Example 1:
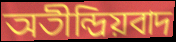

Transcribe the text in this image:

অতীন্দ্রিয়বাদ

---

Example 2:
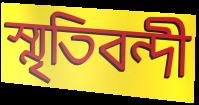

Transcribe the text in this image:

স্মৃতিবন্দী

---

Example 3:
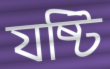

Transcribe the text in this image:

যষ্টি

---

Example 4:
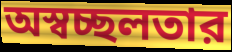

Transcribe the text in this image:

অস্বচ্ছলতার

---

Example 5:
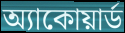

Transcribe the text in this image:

অ্যাকোয়ার্ড